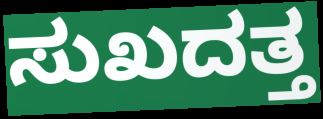
ಸುಖದತ್ತ